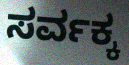
ಸರ್ವಕ್ಕ